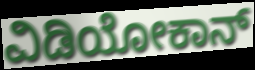
ವಿಡಿಯೋಕಾನ್